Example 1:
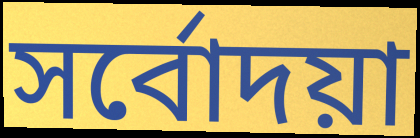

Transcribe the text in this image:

সৰ্বোদয়া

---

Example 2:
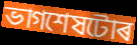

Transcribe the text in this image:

ভাগশেষটোৰ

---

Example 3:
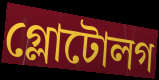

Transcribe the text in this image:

গ্লোটোলগ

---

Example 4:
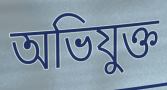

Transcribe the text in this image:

অভিযুক্ত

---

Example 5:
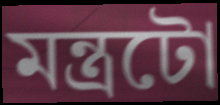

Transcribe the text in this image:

মন্ত্ৰটো